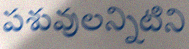
పశువులన్నిటిని